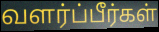
வளர்ப்பீர்கள்